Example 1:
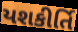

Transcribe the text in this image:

યશકીર્તિ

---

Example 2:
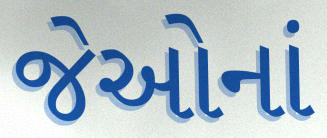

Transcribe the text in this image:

જેઓનાં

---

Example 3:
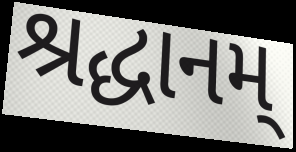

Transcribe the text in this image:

શ્રદ્ધાનમ્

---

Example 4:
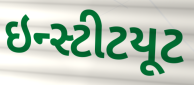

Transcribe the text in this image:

ઇન્સ્ટીટયૂટ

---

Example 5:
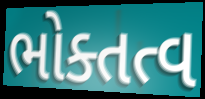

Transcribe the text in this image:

ભોક્તત્વ